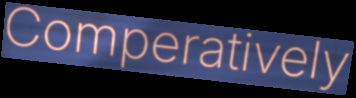
Comperatively